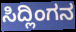
ಸಿದ್ಲಿಂಗನ